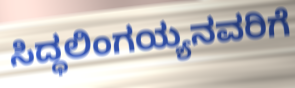
ಸಿದ್ಧಲಿಂಗಯ್ಯನವರಿಗೆ